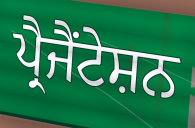
ਪ੍ਰੈਜੈਂਟੇਸ਼ਨ